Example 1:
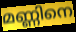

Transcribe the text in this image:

മണ്ണിനെ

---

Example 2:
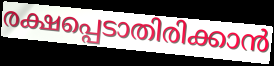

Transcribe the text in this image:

രക്ഷപ്പെടാതിരിക്കാൻ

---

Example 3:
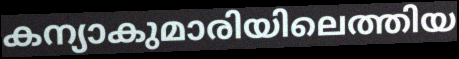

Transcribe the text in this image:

കന്യാകുമാരിയിലെത്തിയ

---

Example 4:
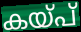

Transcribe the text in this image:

കയ്പ്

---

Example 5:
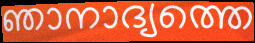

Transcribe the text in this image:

ഞാനാദ്യത്തെ